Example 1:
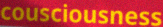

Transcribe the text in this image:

cousciousness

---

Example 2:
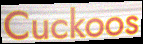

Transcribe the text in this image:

Cuckoos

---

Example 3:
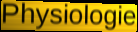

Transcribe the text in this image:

Physiologie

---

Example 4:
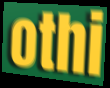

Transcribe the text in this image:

othi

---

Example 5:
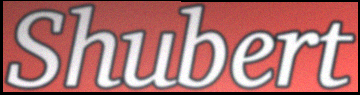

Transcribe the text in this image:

Shubert